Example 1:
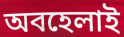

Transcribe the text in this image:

অবহেলাই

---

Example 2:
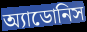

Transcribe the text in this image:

অ্যাডোনিস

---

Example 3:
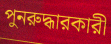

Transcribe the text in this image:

পুনরুদ্ধারকারী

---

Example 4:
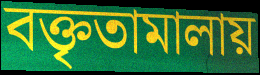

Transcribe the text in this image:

বক্তৃতামালায়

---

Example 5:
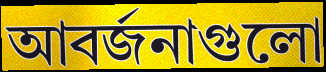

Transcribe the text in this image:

আবর্জনাগুলো